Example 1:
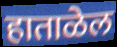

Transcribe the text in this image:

हाताळेल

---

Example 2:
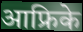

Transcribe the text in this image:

आफ्रिके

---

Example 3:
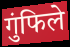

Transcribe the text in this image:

गुंफिले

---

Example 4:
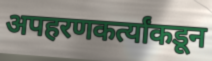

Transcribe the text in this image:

अपहरणकर्त्यांकडून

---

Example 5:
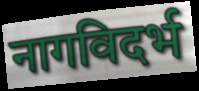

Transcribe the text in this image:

नागविदर्भ